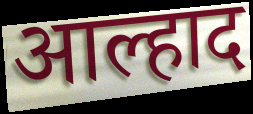
आल्हाद